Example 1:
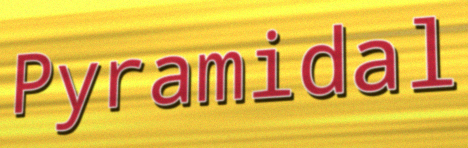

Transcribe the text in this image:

Pyramidal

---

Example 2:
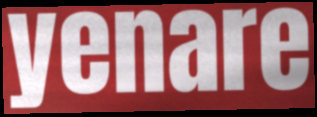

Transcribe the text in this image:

yenare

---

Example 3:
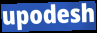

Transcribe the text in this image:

upodesh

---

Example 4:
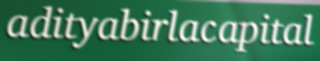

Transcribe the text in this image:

adityabirlacapital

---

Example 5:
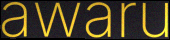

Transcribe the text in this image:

awaru